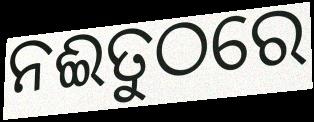
ନଈତୁଠରେ